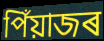
পিঁয়াজৰ